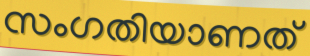
സംഗതിയാണത്